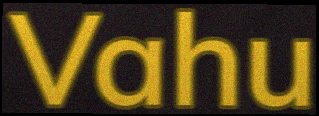
Vahu